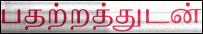
பதற்றத்துடன்